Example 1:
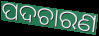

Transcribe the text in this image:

ପଦଚାରଣ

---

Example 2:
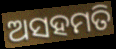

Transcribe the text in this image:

ଅସହମତି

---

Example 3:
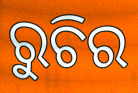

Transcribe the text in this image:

ରୁଚିର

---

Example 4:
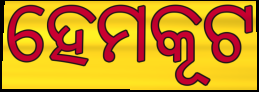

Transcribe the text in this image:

ହେମକୂଟ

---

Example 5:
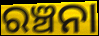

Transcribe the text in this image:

ରଞ୍ଚନା